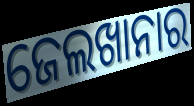
ଜେଲଖାନାର